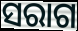
ସରାଗ